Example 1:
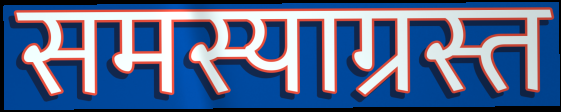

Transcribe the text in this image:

समस्याग्रस्त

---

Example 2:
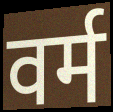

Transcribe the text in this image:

वर्म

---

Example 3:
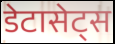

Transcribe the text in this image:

डेटासेट्स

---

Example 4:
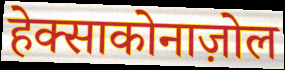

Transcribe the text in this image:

हेक्साकोनाज़ोल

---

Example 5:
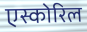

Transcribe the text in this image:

एस्कोरिल